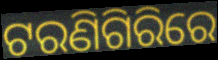
ଟରଣିଗିରିରେ